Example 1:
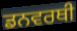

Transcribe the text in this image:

ਡਨਵਰਥੀ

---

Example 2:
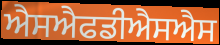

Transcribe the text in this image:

ਐਸਐਫਡੀਐਸਐਸ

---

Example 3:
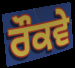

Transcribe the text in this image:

ਰੌਕਵੇ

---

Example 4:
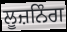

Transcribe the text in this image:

ਲੂਜ਼ਨਿੰਗ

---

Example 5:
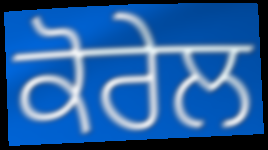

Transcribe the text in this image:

ਕੋਰੇਲ